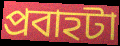
প্রবাহটা